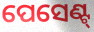
ପେସେଣ୍ଟ୍